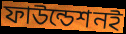
ফাউন্ডেশনই